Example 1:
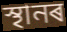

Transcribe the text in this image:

স্থানৰ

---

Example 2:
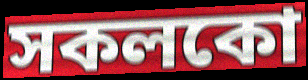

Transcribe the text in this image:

সকলকো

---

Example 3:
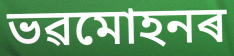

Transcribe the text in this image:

ভৱমোহনৰ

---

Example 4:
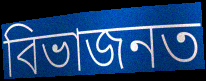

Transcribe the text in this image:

বিভাজনত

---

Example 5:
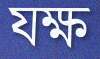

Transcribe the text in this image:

যক্ষ